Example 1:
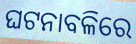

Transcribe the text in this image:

ଘଟନାବଳିରେ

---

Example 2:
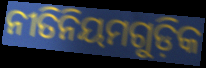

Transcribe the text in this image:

ନୀତିନିୟମଗୁଡ଼ିକ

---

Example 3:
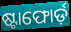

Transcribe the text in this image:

ଷ୍ଟାଫୋର୍ଡ଼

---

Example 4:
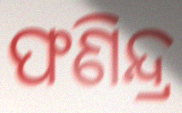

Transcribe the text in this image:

ଫଣିନ୍ଦ୍ର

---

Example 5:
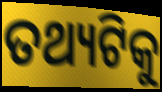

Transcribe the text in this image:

ତଥ୍ୟଟିକୁ